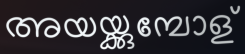
അയയ്ക്കുമ്പോള്